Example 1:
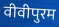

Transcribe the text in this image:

वीवीपुरम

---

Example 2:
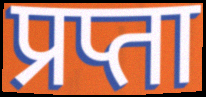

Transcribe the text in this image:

प्रप्ता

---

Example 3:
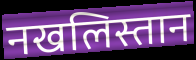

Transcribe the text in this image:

नखलिस्तान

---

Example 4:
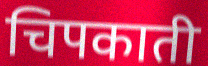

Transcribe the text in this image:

चिपकाती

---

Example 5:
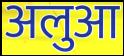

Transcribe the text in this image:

अलुआ